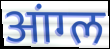
आंग्ल